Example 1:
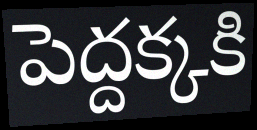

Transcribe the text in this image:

పెద్దక్కకి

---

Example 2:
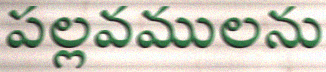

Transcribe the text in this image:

పల్లవములను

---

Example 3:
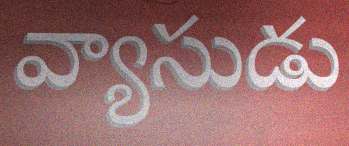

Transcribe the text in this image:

వ్యాసుడు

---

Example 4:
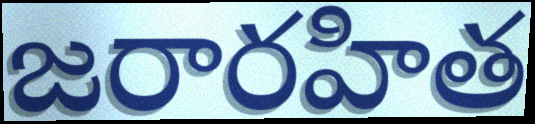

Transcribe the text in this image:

జరారహిత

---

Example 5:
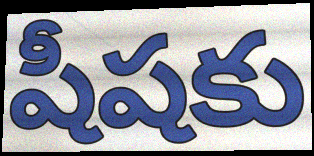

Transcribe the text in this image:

షీషకు